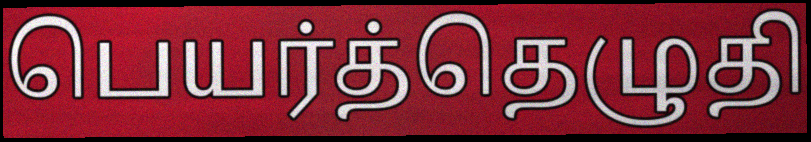
பெயர்த்தெழுதி